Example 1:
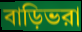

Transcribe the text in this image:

বাড়িভরা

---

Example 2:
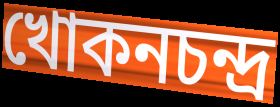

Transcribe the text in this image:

খোকনচন্দ্র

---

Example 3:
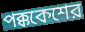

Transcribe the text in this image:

পক্ককেশের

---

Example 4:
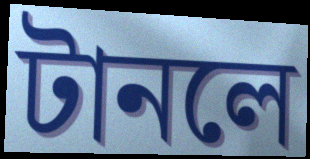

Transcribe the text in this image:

টানলে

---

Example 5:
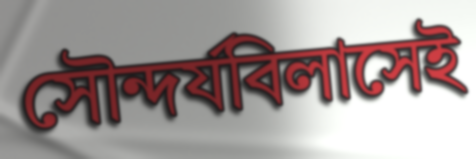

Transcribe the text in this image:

সৌন্দর্যবিলাসেই